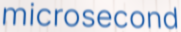
microsecond